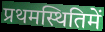
प्रथमस्थितिमें